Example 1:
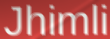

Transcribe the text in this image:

Jhimli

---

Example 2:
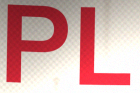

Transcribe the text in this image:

PL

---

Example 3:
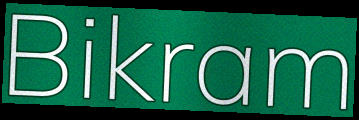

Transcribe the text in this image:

Bikram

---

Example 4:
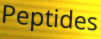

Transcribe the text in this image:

Peptides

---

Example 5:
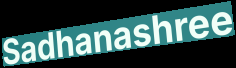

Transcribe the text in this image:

Sadhanashree